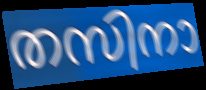
തസിനാ